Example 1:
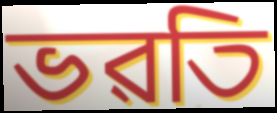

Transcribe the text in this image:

ভৱতি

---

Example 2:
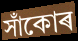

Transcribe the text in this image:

সাঁকোৰ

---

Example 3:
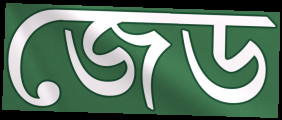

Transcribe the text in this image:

জেড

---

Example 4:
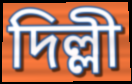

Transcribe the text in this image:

দিল্লী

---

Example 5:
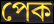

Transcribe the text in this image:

পেক